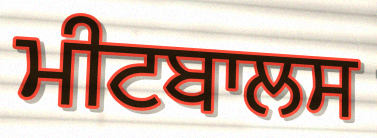
ਮੀਟਬਾਲਸ